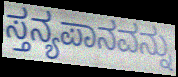
ಸ್ತನ್ಯಪಾನವನ್ನು